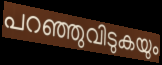
പറഞ്ഞുവിടുകയും